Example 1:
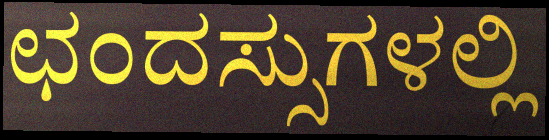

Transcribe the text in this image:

ಛಂದಸ್ಸುಗಳಲ್ಲಿ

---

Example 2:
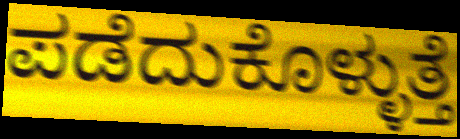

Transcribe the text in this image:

ಪಡೆದುಕೊಳ್ಳುತ್ತೆ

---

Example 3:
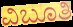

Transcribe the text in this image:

ವಿಬೂತಿ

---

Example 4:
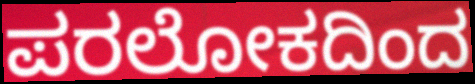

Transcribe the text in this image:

ಪರಲೋಕದಿಂದ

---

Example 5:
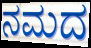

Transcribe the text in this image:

ನಮದ